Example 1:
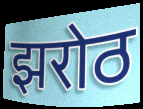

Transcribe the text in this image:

झरोठ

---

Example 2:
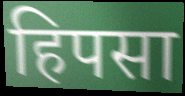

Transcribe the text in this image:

हिपसा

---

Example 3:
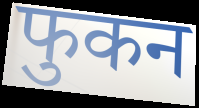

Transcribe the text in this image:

फुकन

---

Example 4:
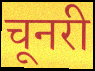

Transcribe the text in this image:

चूनरी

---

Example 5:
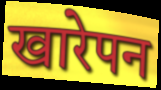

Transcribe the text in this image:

खारेपन